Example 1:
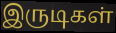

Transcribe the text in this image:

இருடிகள்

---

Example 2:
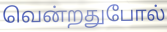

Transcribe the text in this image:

வென்றதுபோல்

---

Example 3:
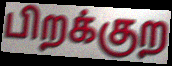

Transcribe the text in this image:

பிறக்குற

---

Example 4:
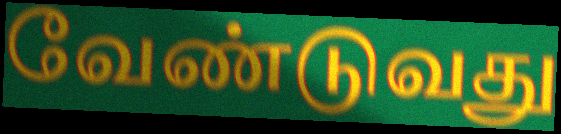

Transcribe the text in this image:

வேண்டுவது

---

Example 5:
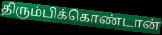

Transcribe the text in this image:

திரும்பிக்கொண்டான்